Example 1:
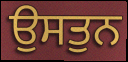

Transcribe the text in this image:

ਉਸਤੁਨ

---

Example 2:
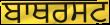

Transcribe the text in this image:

ਬਾਥਰਸਟ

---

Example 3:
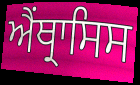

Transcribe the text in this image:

ਐਂਥ੍ਰਾਸਿਸ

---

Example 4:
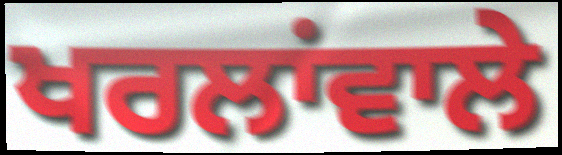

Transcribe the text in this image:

ਖਰਲਾਂਵਾਲੇ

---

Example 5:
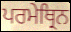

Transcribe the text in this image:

ਪਰਮੇਥ੍ਰਿਨ